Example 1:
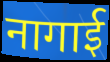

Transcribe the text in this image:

नागाई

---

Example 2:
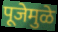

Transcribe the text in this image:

पूजेमुळे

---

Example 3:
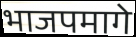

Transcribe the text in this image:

भाजपमागे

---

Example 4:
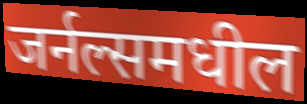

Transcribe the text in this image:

जर्नल्समधील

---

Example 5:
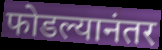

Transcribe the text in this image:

फोडल्यानंतर